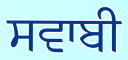
ਸਵਾਬੀ